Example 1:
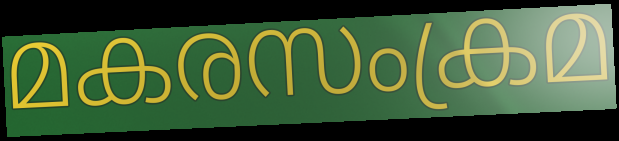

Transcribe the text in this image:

മകരസംക്രമ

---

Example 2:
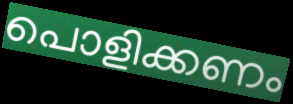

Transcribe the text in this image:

പൊളിക്കണം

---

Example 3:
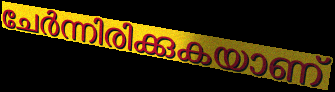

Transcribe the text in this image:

ചേർന്നിരിക്കുകയാണ്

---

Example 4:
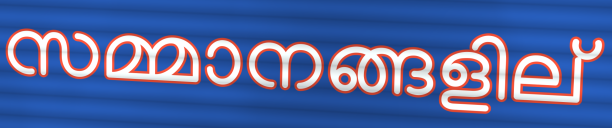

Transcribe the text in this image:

സമ്മാനങ്ങളില്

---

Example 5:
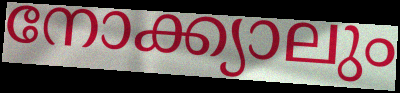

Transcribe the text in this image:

നോക്ക്യാലും